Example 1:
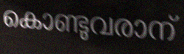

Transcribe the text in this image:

കൊണ്ടുവരാന്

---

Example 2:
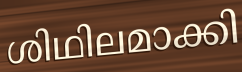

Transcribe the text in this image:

ശിഥിലമാക്കി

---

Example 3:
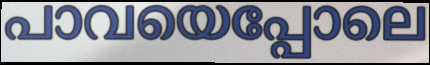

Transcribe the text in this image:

പാവയെപ്പോലെ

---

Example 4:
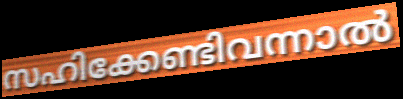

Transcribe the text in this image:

സഹിക്കേണ്ടിവന്നാൽ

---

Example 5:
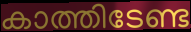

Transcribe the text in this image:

കാത്തിടേണ്ട